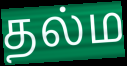
தல்ம